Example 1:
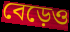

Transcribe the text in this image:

বেড়েও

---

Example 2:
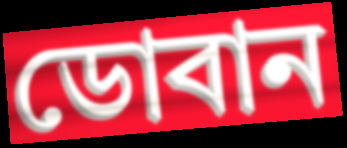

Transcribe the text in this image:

ডোবান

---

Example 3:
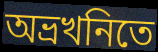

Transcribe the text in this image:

অভ্রখনিতে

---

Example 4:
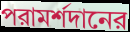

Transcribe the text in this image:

পরামর্শদানের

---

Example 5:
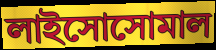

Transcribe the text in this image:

লাইসোসোমাল